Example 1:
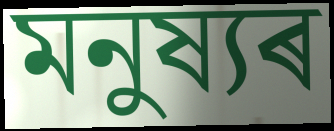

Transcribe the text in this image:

মনুষ্যৰ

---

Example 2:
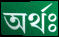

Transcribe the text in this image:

অৰ্থঃ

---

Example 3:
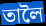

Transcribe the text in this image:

তালৈ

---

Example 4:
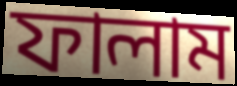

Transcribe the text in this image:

ফালাম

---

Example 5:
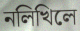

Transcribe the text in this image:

নলিখিলে